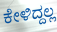
ಕೇಳಿದ್ದಲ್ಲ